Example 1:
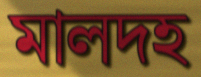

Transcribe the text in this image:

মালদহ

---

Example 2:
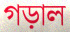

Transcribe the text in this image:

গড়াল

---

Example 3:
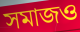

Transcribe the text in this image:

সমাজও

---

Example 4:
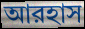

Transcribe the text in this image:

আরহাস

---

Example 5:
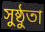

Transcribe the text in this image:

সুষ্ঠুতা